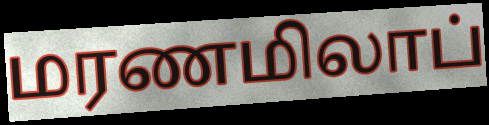
மரணமிலாப்